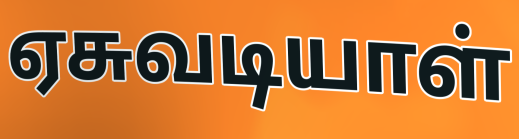
ஏசுவடியாள்